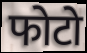
फोटो